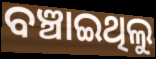
ବଞ୍ଚାଇଥିଲୁ